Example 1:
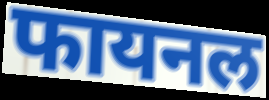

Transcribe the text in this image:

फायनल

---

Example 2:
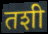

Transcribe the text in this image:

तशी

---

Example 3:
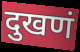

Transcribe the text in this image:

दुखणं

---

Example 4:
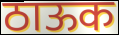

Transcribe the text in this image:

ठाऊक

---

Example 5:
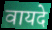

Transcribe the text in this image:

वायदे